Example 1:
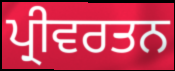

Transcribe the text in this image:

ਪ੍ਰੀਵਰਤਨ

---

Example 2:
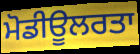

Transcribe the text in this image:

ਮੋਡੀਊਲਰਤਾ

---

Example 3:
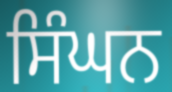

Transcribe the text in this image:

ਸਿੰਘਨ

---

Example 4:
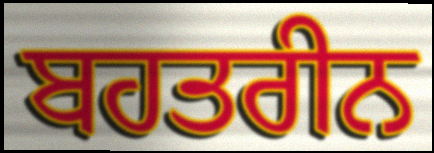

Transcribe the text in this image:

ਬਹਤਰੀਨ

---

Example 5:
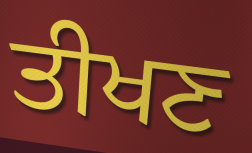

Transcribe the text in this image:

ਤੀਖਣ